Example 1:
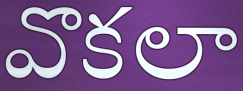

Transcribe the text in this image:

వొకలా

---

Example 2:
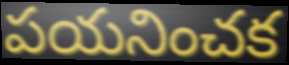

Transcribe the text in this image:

పయనించక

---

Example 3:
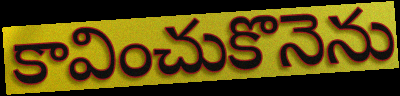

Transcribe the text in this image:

కావించుకొనెను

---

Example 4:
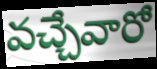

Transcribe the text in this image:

వచ్చేవారో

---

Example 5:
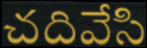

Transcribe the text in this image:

చదివేసి